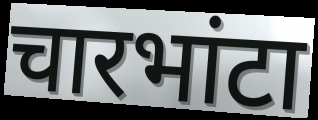
चारभांटा